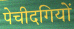
पेचीदगियों